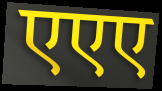
एएए